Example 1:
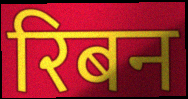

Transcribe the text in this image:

रिबन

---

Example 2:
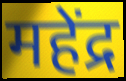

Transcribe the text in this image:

महेंद्र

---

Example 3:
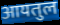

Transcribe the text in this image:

आयतुल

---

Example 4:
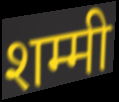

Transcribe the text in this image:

शम्मी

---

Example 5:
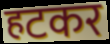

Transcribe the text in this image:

हटकर